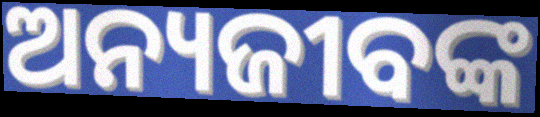
ଅନ୍ୟଜୀବଙ୍କ